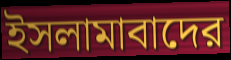
ইসলামাবাদের